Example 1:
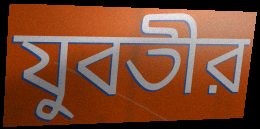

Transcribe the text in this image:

যুবতীর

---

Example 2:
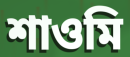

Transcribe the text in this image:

শাওমি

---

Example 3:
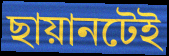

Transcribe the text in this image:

ছায়ানটেই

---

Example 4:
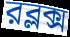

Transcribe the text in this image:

রব্লক্স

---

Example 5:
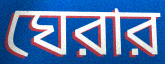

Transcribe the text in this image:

ঘেরার